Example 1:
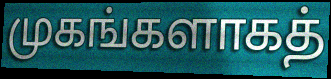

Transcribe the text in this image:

முகங்களாகத்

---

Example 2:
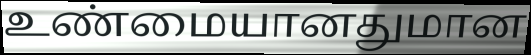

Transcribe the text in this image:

உண்மையானதுமான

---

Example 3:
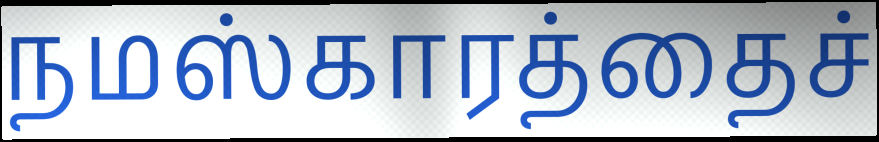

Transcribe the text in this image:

நமஸ்காரத்தைச்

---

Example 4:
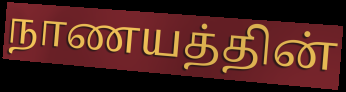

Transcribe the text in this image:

நாணயத்தின்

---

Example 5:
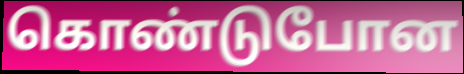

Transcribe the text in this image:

கொண்டுபோன